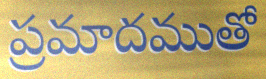
ప్రమాదముతో